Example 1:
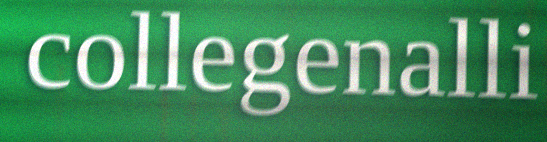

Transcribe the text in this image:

collegenalli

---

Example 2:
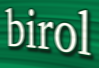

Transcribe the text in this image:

birol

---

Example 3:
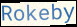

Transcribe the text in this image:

Rokeby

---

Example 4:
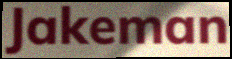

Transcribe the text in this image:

Jakeman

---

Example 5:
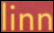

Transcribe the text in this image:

linn